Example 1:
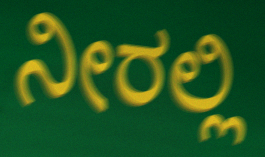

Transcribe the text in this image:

ನೀರಲ್ಲಿ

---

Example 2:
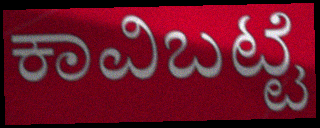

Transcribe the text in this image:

ಕಾವಿಬಟ್ಟೆ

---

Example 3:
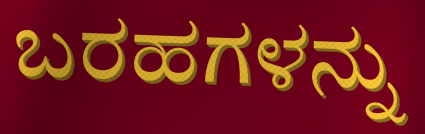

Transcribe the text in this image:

ಬರಹಗಳನ್ನು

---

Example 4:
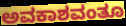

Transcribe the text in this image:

ಅವಕಾಶವಂತೂ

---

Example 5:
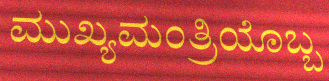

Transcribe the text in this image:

ಮುಖ್ಯಮಂತ್ರಿಯೊಬ್ಬ